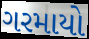
ગરમાયો